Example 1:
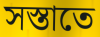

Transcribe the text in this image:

সস্তাতে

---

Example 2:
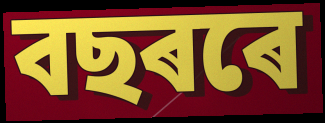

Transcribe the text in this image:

বছৰৰে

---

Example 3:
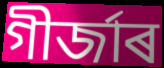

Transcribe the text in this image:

গীৰ্জাৰ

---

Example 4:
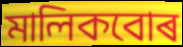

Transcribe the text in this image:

মালিকবোৰ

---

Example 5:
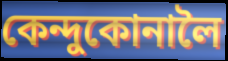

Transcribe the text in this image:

কেন্দুকোনালৈ